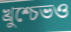
খ্রুশ্চেভও